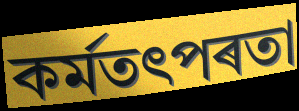
কৰ্মতৎপৰতা